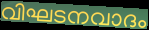
വിഘടനവാദം